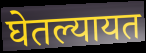
घेतल्यायत